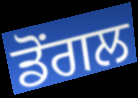
ਡੋਂਗਲ